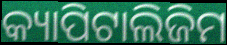
କ୍ୟାପିଟାଲିଜିମ